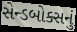
સેન્ડબોક્સનું